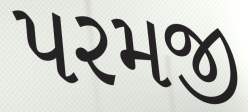
પરમજી